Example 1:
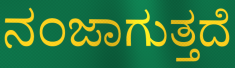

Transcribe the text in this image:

ನಂಜಾಗುತ್ತದೆ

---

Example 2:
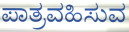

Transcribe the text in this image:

ಪಾತ್ರವಹಿಸುವ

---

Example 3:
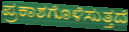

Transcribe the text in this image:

ಪ್ರಕಾಶಗೊಳಿಸುತ್ತದೆ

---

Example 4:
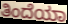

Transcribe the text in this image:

ತಿಂದೆಯಾ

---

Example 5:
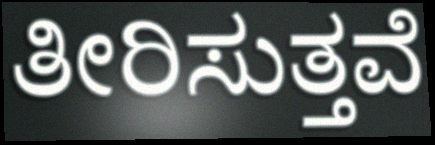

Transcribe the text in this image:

ತೀರಿಸುತ್ತವೆ